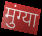
मुंग्या